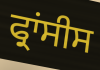
ਫ੍ਰਾਂਸੀਸ